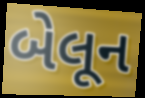
બેલૂન